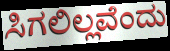
ಸಿಗಲಿಲ್ಲವೆಂದು